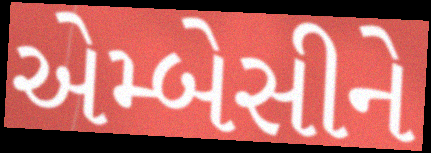
એમ્બેસીને